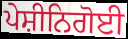
ਪੇਸ਼ੀਨਿਗੋਈ